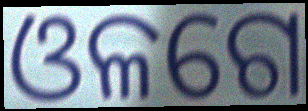
ଓଳଗେ